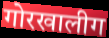
गोरखालीग